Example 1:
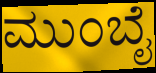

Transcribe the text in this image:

ಮುಂಬೈ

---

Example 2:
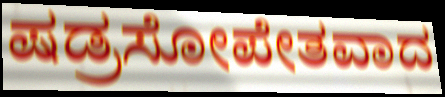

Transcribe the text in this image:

ಷಡ್ರಸೋಪೇತವಾದ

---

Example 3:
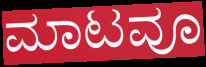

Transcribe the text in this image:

ಮಾಟವೂ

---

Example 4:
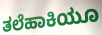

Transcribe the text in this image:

ತಲೆಹಾಕಿಯೂ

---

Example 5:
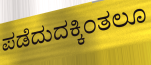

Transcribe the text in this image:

ಪಡೆದುದಕ್ಕಿಂತಲೂ